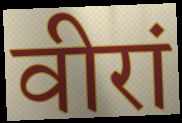
वीरां